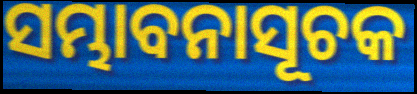
ସମ୍ଭାବନାସୂଚକ